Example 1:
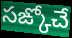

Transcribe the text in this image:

సఙ్కోచే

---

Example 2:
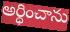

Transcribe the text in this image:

అర్ధించాను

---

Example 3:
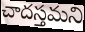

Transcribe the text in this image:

చాదస్తమని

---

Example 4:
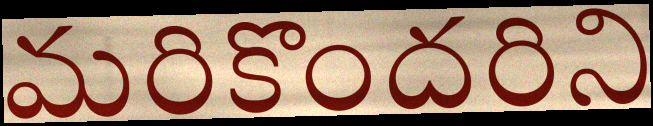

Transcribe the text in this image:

మరికొందరిని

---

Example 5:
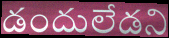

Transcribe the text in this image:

డందులేడని